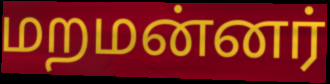
மறமன்னர்